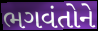
ભગવંતોને